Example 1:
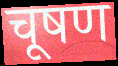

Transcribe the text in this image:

चूषण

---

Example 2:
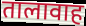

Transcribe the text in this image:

तालावाह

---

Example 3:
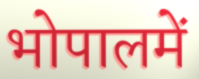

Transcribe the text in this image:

भोपालमें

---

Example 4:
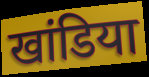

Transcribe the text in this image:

खांडिया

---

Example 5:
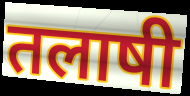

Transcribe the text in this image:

तलाषी